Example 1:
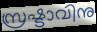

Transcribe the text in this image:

സ്രഷ്ടാവിനു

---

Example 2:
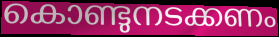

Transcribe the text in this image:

കൊണ്ടുനടക്കണം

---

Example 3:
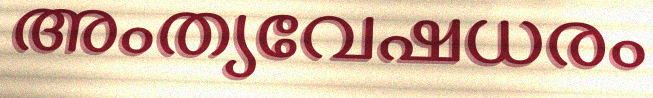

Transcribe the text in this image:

അംത്യവേഷധരം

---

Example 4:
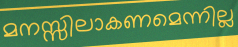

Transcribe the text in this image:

മനസ്സിലാകണമെന്നില്ല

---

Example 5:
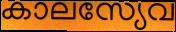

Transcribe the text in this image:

കാലസ്യേവ